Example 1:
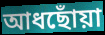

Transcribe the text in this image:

আধছোঁয়া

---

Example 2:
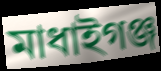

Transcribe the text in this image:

মাধাইগঞ্জ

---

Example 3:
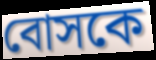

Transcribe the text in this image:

বোসকে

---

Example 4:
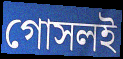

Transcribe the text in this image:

গোসলই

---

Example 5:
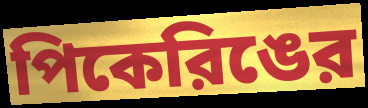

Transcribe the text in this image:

পিকেরিঙের